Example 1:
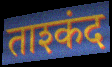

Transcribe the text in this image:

ताश्कंद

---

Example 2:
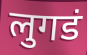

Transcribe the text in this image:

लुगडं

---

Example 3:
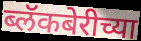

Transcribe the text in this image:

ब्लॅकबेरीच्या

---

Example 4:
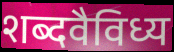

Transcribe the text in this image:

शब्दवैविध्य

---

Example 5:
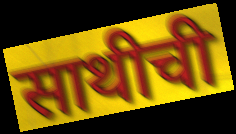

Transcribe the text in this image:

साथीची